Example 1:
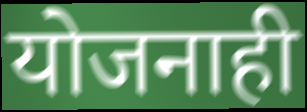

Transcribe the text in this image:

योजनाही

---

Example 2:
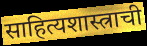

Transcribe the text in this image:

साहित्यशास्त्राची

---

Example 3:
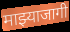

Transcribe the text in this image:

माझ्याजागी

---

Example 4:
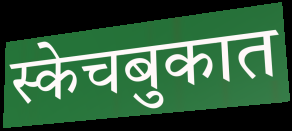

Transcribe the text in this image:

स्केचबुकात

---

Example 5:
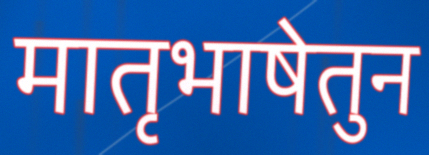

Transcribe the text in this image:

मातृभाषेतुन